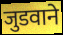
जुडवाने